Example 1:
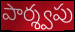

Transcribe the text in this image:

పార్శ్వపు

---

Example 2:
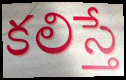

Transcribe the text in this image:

కలిస్తే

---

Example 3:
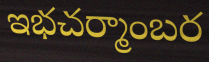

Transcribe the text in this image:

ఇభచర్మాంబర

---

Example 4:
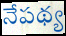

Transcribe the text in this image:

నేపథ్య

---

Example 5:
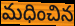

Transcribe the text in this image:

మధించిన